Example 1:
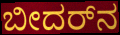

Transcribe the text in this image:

ಬೀದರ್‌ನ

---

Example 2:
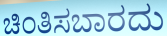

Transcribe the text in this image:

ಚಿಂತಿಸಬಾರದು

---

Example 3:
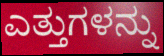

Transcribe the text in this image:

ಎತ್ತುಗಳನ್ನು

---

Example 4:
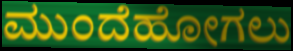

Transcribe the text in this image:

ಮುಂದೆಹೋಗಲು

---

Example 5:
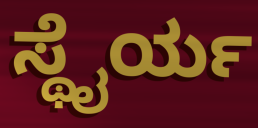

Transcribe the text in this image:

ಸ್ಥೈರ್ಯ